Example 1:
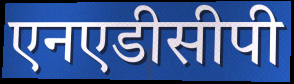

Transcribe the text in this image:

एनएडीसीपी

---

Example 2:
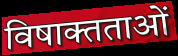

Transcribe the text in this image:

विषाक्तताओं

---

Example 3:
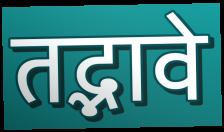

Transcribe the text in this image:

तद्भावे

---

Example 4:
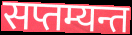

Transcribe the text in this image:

सप्तम्यन्त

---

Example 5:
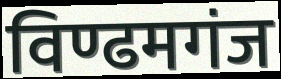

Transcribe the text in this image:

विण्ढमगंज